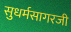
सुधर्मसागरजी